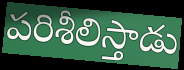
పరిశీలిస్తాడు